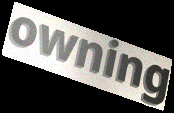
owning